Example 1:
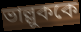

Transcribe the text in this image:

ভাল্লুককে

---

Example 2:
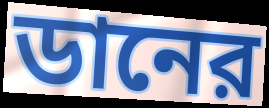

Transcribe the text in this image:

ডানের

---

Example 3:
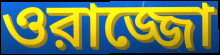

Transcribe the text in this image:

ওরাজ্জো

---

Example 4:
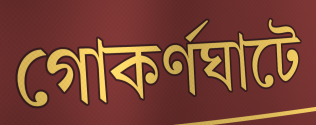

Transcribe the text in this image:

গোকর্ণঘাটে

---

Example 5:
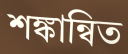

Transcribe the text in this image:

শঙ্কান্বিত